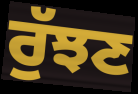
ਰੁੱਝਣ